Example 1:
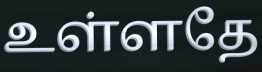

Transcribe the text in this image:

உள்ளதே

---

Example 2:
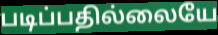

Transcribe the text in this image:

படிப்பதில்லையே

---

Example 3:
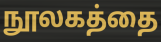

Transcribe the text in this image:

நூலகத்தை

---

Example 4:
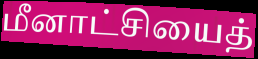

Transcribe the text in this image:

மீனாட்சியைத்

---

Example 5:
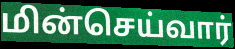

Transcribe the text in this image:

மின்செய்வார்